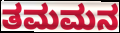
ತಮಮನ